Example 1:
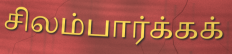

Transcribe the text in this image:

சிலம்பார்க்கக்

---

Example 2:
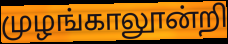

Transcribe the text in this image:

முழங்காலூன்றி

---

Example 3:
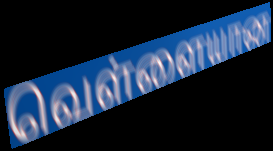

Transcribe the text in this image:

வெள்ளையான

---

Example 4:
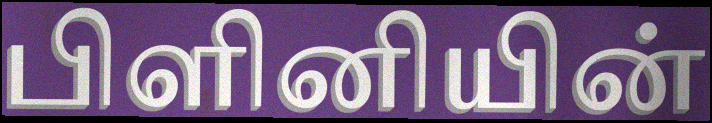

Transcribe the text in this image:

பிளினியின்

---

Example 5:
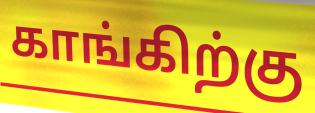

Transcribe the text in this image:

காங்கிற்கு